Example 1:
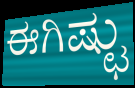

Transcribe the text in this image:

ಈಗಿಷ್ಟು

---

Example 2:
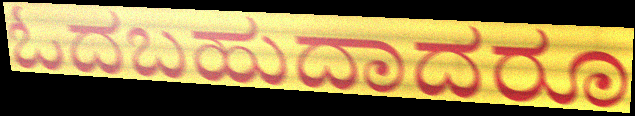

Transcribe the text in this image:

ಓದಬಹುದಾದರೂ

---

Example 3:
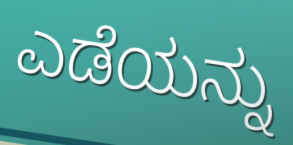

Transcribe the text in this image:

ಎಡೆಯನ್ನು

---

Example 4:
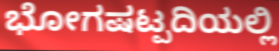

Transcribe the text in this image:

ಭೋಗಷಟ್ಪದಿಯಲ್ಲಿ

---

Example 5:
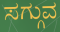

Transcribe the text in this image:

ಸಗ್ಗುವ